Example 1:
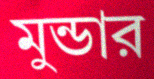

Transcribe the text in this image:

মুন্ডার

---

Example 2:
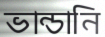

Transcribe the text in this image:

ভান্ডানি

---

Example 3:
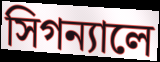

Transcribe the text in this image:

সিগন্যালে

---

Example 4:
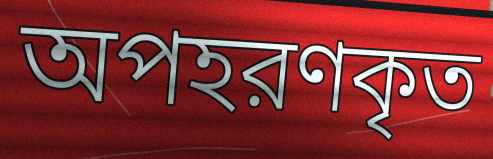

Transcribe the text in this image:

অপহরণকৃত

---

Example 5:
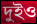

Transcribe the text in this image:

দুইও